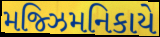
મજ્ઝિમનિકાયે